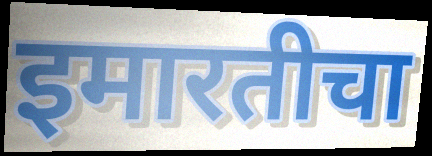
इमारतीचा